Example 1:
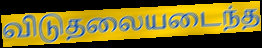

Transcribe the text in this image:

விடுதலையடைந்த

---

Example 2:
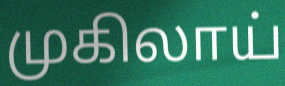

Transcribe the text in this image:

முகிலாய்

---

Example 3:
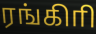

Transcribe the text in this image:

ரங்கிரி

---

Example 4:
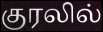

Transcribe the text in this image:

குரலில்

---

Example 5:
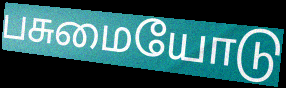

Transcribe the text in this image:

பசுமையோடு